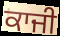
ਕਾਜੀ